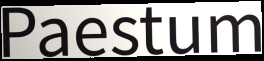
Paestum